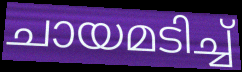
ചായമടിച്ച്